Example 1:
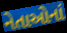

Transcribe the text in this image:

નેતાઓનાં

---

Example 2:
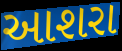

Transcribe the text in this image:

આશરા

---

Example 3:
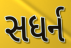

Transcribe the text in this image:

સધર્ન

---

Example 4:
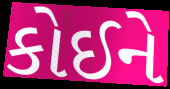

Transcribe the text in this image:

કોઈને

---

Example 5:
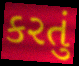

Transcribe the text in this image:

કરતું